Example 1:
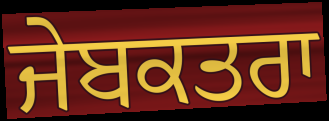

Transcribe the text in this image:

ਜੇਬਕਤਰਾ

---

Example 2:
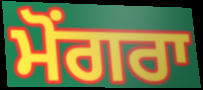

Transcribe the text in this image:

ਮੋਂਗਰਾ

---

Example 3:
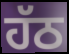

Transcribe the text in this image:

ਹੱਠ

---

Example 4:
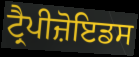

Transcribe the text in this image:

ਟ੍ਰੈਪੀਜ਼ੋਇਡਸ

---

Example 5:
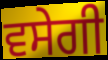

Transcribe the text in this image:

ਵਸੇਗੀ